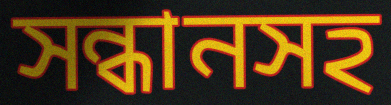
সন্ধানসহ